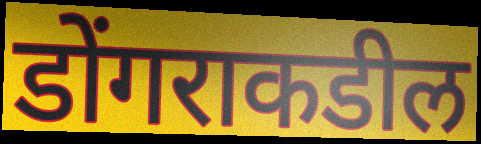
डोंगराकडील